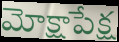
మోక్షాపేక్ష